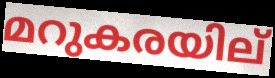
മറുകരയില്